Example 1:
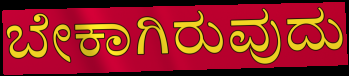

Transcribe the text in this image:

ಬೇಕಾಗಿರುವುದು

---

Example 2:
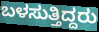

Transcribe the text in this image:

ಬಳಸುತ್ತಿದ್ದರು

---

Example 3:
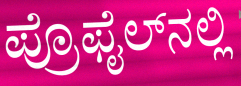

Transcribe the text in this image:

ಪ್ರೊಫೈಲ್‌ನಲ್ಲಿ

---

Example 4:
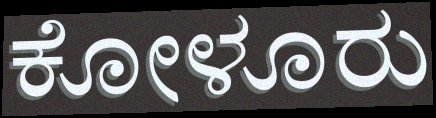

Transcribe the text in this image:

ಕೋಳೂರು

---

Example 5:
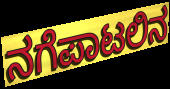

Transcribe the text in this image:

ನಗೆಪಾಟಲಿನ